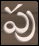
పు